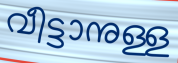
വീട്ടാനുള്ള